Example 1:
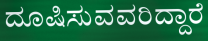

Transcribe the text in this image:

ದೂಷಿಸುವವರಿದ್ದಾರೆ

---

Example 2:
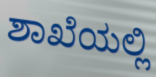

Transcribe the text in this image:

ಶಾಖೆಯಲ್ಲಿ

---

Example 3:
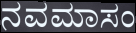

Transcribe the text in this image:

ನವಮಾಸಂ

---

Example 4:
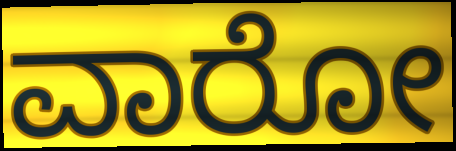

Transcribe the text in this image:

ವಾರೋ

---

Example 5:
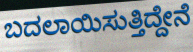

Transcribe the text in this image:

ಬದಲಾಯಿಸುತ್ತಿದ್ದೇನೆ